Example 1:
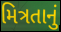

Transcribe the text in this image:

મિત્રતાનું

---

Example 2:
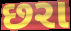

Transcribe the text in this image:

છરા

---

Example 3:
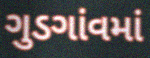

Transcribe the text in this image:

ગુડગાંવમાં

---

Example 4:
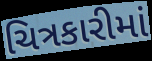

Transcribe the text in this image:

ચિત્રકારીમાં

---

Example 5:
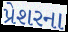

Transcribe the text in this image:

પ્રેશરના